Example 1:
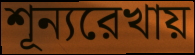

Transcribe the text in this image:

শূন্যরেখায়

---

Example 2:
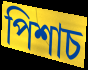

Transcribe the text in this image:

পিশাচ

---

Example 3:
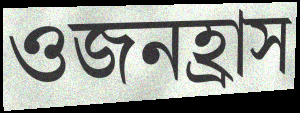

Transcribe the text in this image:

ওজনহ্রাস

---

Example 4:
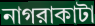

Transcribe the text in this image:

নাগরাকাটা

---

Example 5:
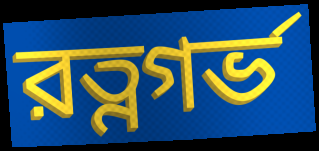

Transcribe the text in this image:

রত্নগর্ভ